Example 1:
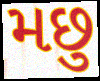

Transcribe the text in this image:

મછુ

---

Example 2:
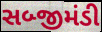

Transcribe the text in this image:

સબ્જીમંડી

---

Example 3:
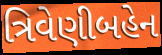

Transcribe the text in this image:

ત્રિવેણીબહેન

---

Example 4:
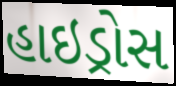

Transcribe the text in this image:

હાઇડ્રોસ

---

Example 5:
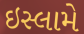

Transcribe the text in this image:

ઇસ્લામે